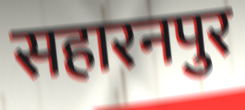
सहारनपुर